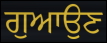
ਗੁਆਉਣ